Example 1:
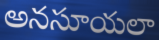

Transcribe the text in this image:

అనసూయలా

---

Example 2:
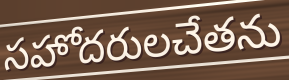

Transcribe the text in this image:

సహోదరులచేతను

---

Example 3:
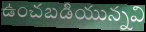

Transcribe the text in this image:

ఉంచబడియున్నవి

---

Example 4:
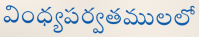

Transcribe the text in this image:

వింధ్యపర్వతములలో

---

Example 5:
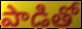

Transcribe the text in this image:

పాడితో